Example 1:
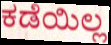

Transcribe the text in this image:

ಕಡೆಯಿಲ್ಲ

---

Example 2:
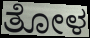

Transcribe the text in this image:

ತೋಳ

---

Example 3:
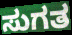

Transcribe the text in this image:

ಸುಗತ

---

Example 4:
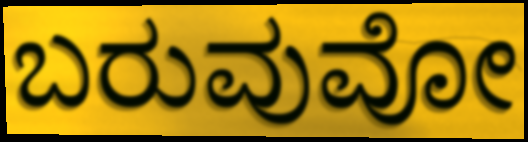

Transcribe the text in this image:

ಬರುವುವೋ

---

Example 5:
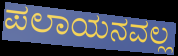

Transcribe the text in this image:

ಪಲಾಯನವಲ್ಲ